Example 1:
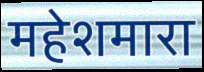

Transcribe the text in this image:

महेशमारा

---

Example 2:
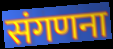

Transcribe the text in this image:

संगणना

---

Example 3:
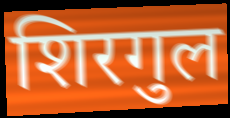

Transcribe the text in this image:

शिरगुल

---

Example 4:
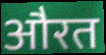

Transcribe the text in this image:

औरत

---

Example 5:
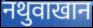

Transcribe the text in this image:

नथुवाखान